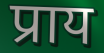
प्राय